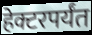
हेक्टरपर्यंत